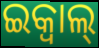
ଇକ୍ବାଲ୍